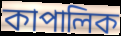
কাপালিক